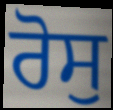
ਰੋਸੁ